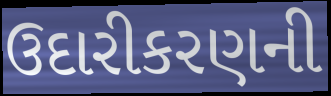
ઉદારીકરણની